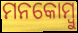
ମନକୋମ୍ବୁ